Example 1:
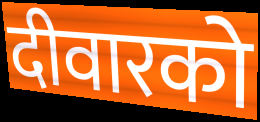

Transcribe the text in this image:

दीवारको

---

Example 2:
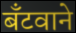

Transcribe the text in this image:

बँटवाने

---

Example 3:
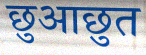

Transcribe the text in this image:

छुआछुत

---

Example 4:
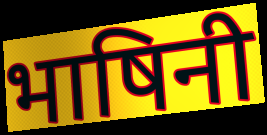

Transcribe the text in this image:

भाषिनी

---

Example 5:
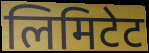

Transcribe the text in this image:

लिमिटेट